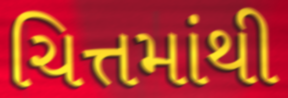
ચિત્તમાંથી